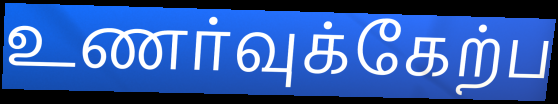
உணர்வுக்கேற்ப